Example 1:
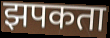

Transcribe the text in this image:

झपकता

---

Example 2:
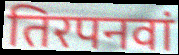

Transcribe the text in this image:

तिरपनवां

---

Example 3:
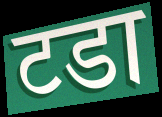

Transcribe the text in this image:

टडा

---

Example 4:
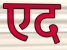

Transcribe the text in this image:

एद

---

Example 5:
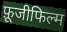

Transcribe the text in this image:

फ़ूजीफिल्म